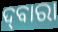
ଦ୍‌ବାରା